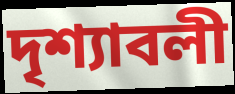
দৃশ্যাবলী